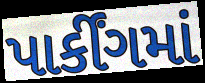
પાર્કીંગમાં